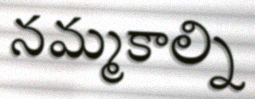
నమ్మకాల్ని